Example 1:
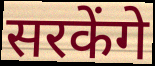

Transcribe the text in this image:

सरकेंगे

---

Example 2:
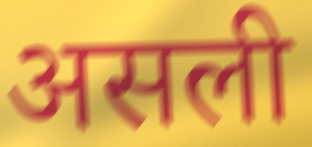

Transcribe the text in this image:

असली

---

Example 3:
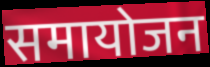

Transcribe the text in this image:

समायोजन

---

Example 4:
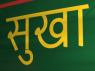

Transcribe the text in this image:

सुखा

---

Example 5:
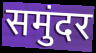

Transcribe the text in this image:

समुंदर